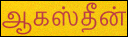
ஆகஸ்தீன்